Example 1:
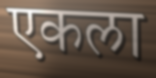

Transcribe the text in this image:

एकला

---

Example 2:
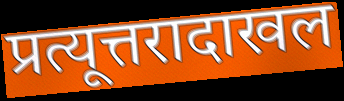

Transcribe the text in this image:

प्रत्यूत्तरादाखल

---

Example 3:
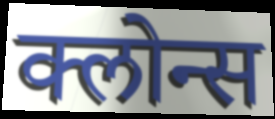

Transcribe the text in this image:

क्लोन्स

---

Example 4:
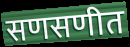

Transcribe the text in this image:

सणसणीत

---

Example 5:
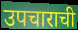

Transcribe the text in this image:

उपचाराची